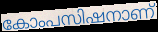
കോംപസിഷനാണ്